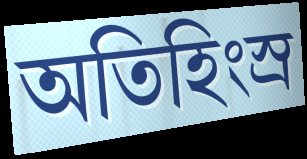
অতিহিংস্র